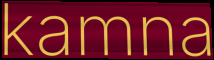
kamna